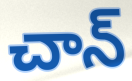
చాన్